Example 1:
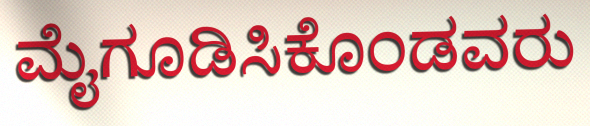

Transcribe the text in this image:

ಮೈಗೂಡಿಸಿಕೊಂಡವರು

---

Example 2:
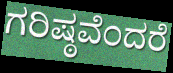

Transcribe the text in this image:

ಗರಿಷ್ಠವೆಂದರೆ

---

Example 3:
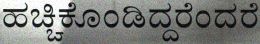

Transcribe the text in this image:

ಹಚ್ಚಿಕೊಂಡಿದ್ದರೆಂದರೆ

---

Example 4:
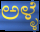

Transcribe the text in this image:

ಅಳ್ಳೆ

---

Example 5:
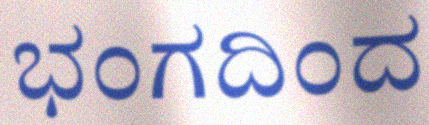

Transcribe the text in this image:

ಭಂಗದಿಂದ